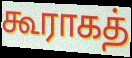
கூராகத்